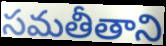
సమతీతాని